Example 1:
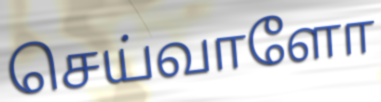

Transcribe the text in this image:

செய்வாளோ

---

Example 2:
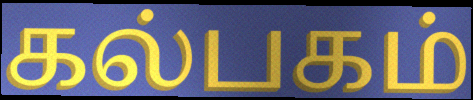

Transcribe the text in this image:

கல்பகம்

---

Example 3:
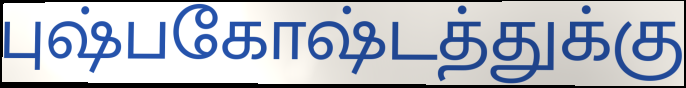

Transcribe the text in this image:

புஷ்பகோஷ்டத்துக்கு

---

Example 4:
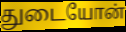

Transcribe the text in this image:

துடையோன்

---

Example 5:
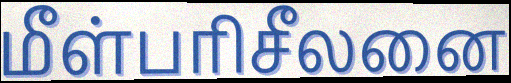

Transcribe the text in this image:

மீள்பரிசீலனை